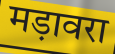
मड़ावरा